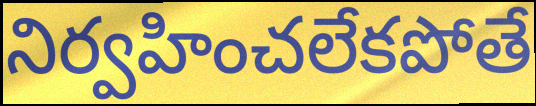
నిర్వహించలేకపోతే